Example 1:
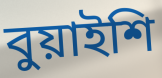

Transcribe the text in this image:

বুয়াইশি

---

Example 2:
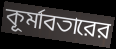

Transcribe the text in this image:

কূর্মাবতারের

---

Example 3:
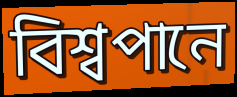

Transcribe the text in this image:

বিশ্বপানে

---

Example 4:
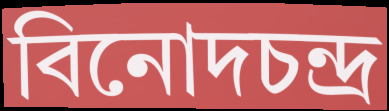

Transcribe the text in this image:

বিনোদচন্দ্র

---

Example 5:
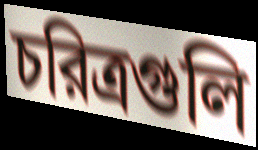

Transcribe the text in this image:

চরিত্রগুলি